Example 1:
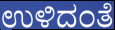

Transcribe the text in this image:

ಉಳಿದಂತೆ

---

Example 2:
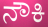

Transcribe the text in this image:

ನೌಕಿ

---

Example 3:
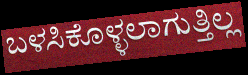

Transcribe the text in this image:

ಬಳಸಿಕೊಳ್ಳಲಾಗುತ್ತಿಲ್ಲ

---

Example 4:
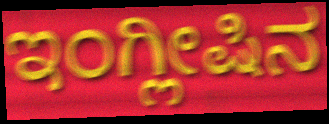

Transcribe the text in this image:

ಇಂಗ್ಲೀಷಿನ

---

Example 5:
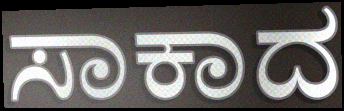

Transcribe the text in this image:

ಸಾಕಾದ